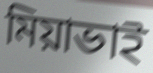
মিয়াভাই